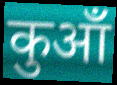
कुआँ